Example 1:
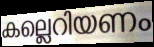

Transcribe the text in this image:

കല്ലെറിയണം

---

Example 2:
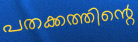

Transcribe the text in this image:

പതക്കത്തിന്റെ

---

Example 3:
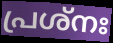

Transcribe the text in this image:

പ്രശ്നഃ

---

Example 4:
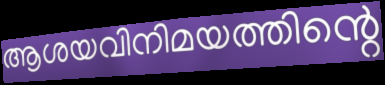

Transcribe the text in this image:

ആശയവിനിമയത്തിന്റെ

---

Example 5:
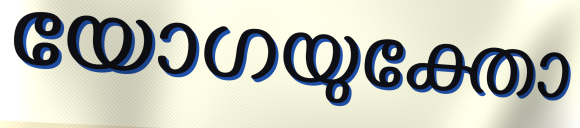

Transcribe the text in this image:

യോഗയുക്തോ